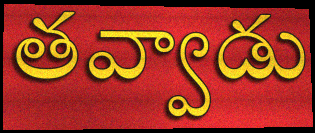
తవ్వాడు